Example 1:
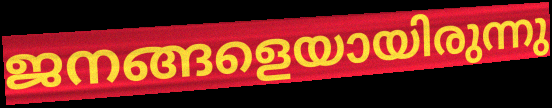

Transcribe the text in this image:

ജനങ്ങളെയായിരുന്നു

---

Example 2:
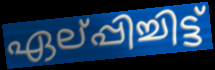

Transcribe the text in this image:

ഏല്പ്പിച്ചിട്ട്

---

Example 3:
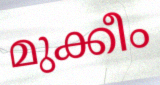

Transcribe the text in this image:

മുക്കീം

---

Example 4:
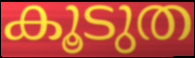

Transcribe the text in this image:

കൂടുത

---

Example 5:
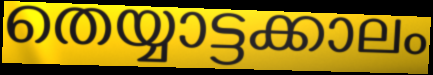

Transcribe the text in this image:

തെയ്യാട്ടക്കാലം